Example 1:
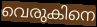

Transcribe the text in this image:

വെരുകിനെ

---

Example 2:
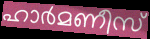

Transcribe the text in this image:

ഹാർമണീസ്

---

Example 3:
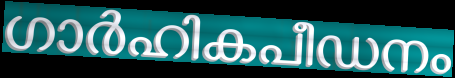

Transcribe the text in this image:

ഗാർഹികപീഡനം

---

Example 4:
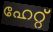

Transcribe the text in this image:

ഹേറ്റ്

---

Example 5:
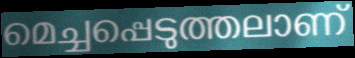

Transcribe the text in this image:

മെച്ചപ്പെടുത്തലാണ്